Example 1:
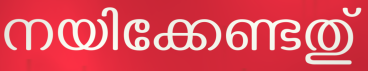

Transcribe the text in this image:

നയിക്കേണ്ടതു്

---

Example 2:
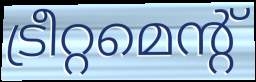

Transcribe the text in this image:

ട്രീറ്റമെന്റ്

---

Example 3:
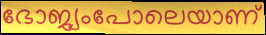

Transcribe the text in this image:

ഭോജ്യംപോലെയാണ്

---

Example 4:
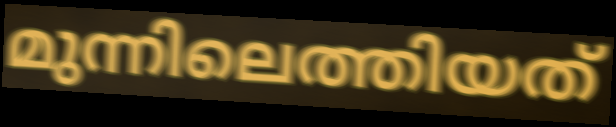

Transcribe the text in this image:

മുന്നിലെത്തിയത്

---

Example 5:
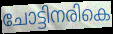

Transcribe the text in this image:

ചോട്ടിനരികെ